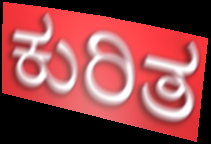
ಕುರಿತ